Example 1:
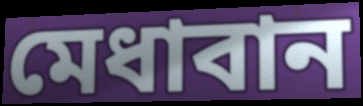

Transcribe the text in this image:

মেধাবান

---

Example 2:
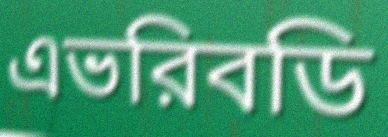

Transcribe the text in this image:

এভরিবডি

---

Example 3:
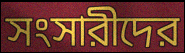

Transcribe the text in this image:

সংসারীদের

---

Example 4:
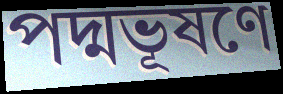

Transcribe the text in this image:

পদ্মভূষণে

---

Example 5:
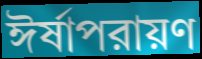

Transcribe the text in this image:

ঈর্ষাপরায়ণ